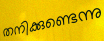
തനിക്കുണ്ടെന്നു